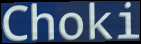
Choki